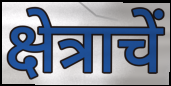
क्षेत्राचें